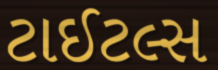
ટાઈટલ્સ